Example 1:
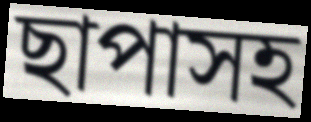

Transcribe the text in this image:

ছাপাসহ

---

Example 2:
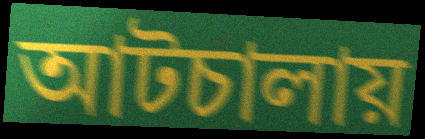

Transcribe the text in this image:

আটচালায়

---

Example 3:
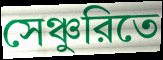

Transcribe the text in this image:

সেঞ্চুরিতে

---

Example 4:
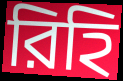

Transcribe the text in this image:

রিহি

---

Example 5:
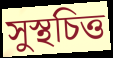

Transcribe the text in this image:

সুস্থচিত্ত